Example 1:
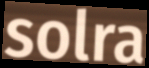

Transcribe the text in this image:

solra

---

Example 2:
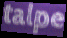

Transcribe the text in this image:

talpe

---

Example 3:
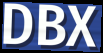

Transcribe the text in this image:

DBX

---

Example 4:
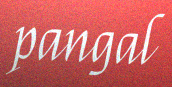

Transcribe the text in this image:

pangal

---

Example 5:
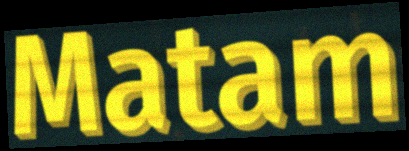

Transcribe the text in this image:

Matam